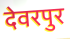
देवरपुर